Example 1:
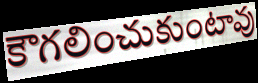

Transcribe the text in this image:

కౌగలించుకుంటావు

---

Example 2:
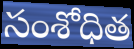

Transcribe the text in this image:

సంశోధిత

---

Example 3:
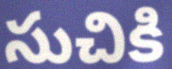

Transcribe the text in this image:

సుచికి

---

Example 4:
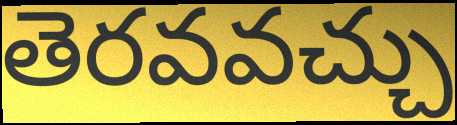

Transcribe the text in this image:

తెరవవచ్చు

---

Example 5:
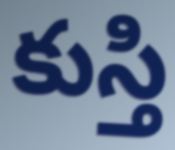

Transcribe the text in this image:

కుస్తి